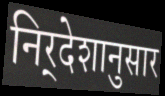
निर्देशानुसार